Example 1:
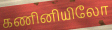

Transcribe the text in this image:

கணினியிலோ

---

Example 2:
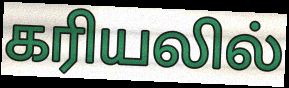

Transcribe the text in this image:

கரியலில்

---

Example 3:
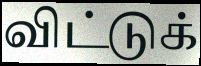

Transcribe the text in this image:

விட்டுக்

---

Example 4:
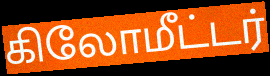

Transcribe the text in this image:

கிலோமீட்டர்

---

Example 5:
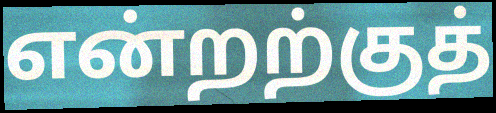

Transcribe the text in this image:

என்றற்குத்